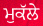
ਮੁਕੱਲੇ